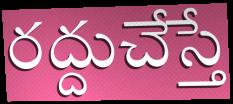
రద్దుచేస్తే